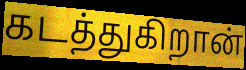
கடத்துகிறான்